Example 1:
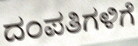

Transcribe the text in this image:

ದಂಪತಿಗಳಿಗೆ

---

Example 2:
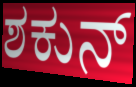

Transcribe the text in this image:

ಶಕುನ್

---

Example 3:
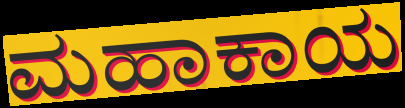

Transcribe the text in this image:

ಮಹಾಕಾಯ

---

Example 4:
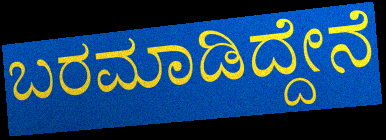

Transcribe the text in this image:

ಬರಮಾಡಿದ್ದೇನೆ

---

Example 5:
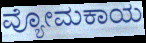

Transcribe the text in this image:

ವ್ಯೋಮಕಾಯ